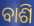
ବାଶି